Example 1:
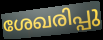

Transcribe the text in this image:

ശേഖരിപ്പു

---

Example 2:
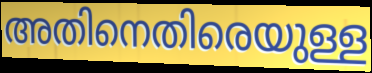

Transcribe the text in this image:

അതിനെതിരെയുള്ള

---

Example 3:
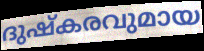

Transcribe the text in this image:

ദുഷ്കരവുമായ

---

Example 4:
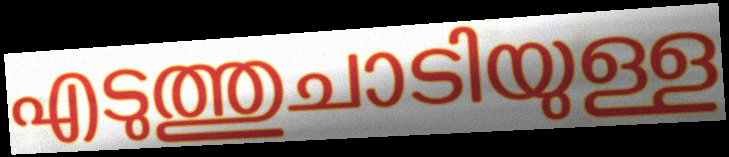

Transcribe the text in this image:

എടുത്തുചാടിയുള്ള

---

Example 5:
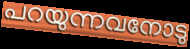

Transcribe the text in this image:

പറയുന്നവനോടു